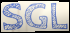
SGL